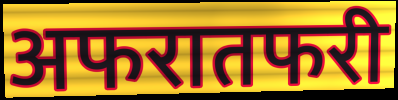
अफरातफरी